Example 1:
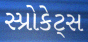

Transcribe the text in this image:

સ્પ્રોકેટ્સ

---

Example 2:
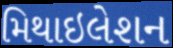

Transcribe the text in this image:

મિથાઇલેશન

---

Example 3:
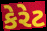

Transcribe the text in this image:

કેરેટ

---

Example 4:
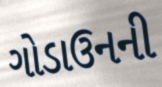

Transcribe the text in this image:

ગોડાઉનની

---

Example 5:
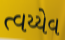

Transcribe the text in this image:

ત્વય્યેવ